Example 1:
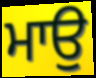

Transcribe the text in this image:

ਮਾਉ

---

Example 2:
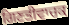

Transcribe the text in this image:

ਗਿਣਤੀਵਾਚਕ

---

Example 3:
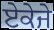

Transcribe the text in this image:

ਏਕੇਜੇ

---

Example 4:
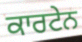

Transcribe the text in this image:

ਕਾਰਟੇਨ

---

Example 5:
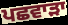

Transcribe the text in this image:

ਪਛਵਾੜਾ